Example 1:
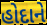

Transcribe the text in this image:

હોદાને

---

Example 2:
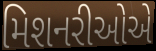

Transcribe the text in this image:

મિશનરીઓએ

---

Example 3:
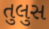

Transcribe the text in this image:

તુલુસ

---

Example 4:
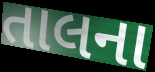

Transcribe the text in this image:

તાલના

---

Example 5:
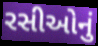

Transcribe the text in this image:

રસીઓનું